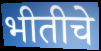
भीतीचे